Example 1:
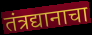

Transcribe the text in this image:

तंत्रद्यानाचा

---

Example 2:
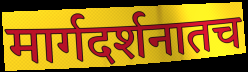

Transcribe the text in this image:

मार्गदर्शनातच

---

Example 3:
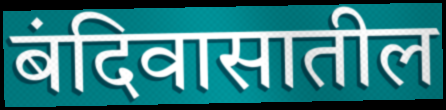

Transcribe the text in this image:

बंदिवासातील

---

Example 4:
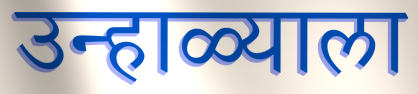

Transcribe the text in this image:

उन्हाळ्याला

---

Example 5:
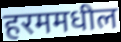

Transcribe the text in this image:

हरममधील